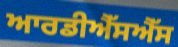
ਆਰਡੀਐੱਸਐੱਸ